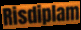
Risdiplam